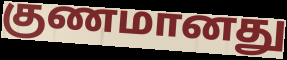
குணமானது